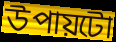
উপায়টো